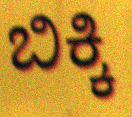
ಬಿಕ್ಕಿ